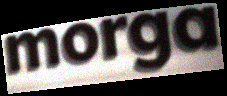
morga